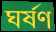
ঘৰ্ষণ